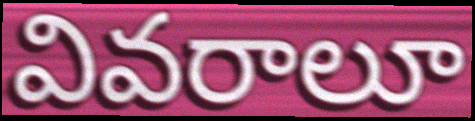
వివరాలూ